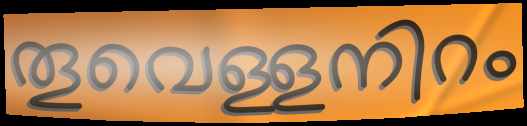
തൂവെള്ളനിറം